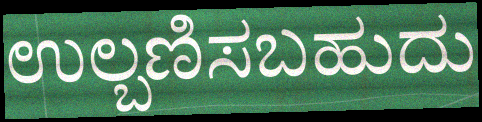
ಉಲ್ಬಣಿಸಬಹುದು